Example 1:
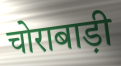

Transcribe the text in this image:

चोराबाड़ी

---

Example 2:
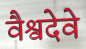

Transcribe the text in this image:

वैश्वदेवे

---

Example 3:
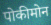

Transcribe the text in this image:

पोकीमोन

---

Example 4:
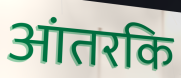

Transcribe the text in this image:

आंतरकि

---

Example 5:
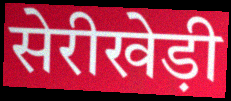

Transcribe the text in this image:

सेरीखेड़ी